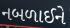
નબળાઈને